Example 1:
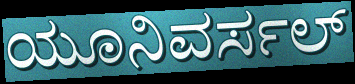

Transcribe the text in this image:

ಯೂನಿವರ್ಸಲ್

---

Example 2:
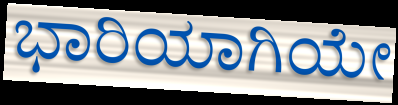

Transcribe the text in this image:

ಭಾರಿಯಾಗಿಯೇ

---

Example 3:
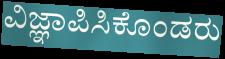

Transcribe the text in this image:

ವಿಜ್ಞಾಪಿಸಿಕೊಂಡರು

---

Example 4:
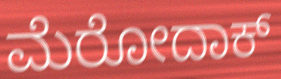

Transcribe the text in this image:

ಮೆರೋದಾಕ್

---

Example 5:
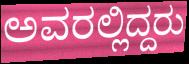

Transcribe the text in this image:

ಅವರಲ್ಲಿದ್ದರು